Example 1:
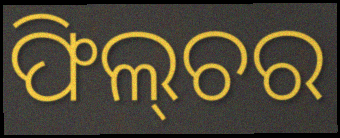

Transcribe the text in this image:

ଫିଲ୍‌ଚର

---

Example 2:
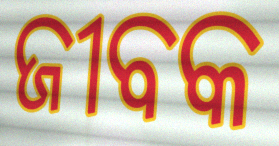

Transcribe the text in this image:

ଜୀବକ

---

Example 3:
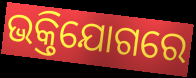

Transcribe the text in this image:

ଭକ୍ତିଯୋଗରେ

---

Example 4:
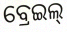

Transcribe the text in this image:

ବ୍ରେଇଲ୍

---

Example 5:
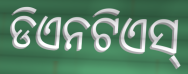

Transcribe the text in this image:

ଡିଏନଟିଏସ୍